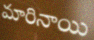
మారినాయి